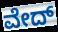
ವೇದ್